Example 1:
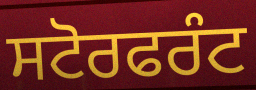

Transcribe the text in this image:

ਸਟੋਰਫਰੰਟ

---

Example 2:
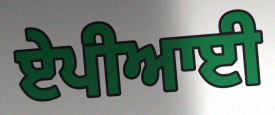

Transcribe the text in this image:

ਏਪੀਆਈ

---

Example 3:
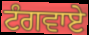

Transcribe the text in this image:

ਟੰਗਵਾਏ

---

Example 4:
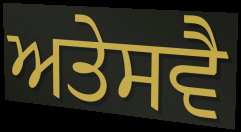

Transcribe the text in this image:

ਅਤੇਸਵੈ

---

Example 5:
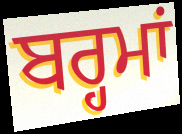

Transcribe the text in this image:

ਬਰ੍ਹਮਾਂ